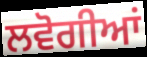
ਲਵੋਗੀਆਂ